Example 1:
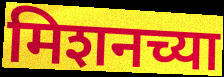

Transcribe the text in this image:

मिशनच्या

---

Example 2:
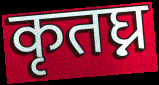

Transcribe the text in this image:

कृतघ्न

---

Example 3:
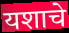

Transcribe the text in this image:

यशाचे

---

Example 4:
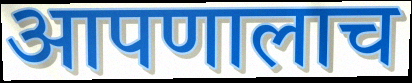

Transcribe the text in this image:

आपणालाच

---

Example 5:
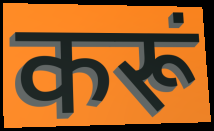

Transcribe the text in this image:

करूं